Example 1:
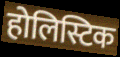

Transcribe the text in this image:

होलिस्टिक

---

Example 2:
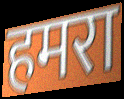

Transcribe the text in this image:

हमरा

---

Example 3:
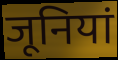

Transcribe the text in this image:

जूनियां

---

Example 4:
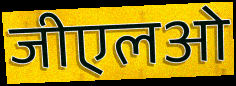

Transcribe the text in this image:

जीएलओ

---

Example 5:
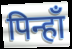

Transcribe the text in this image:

पिन्हाँ